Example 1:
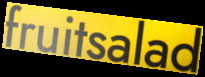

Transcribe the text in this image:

fruitsalad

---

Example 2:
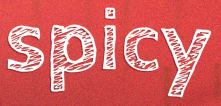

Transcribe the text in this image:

spicy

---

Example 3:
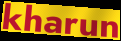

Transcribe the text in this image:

kharun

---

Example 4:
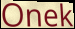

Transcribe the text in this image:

Onek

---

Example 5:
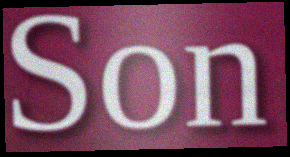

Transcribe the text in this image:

Son